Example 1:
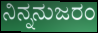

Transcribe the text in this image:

ನಿನ್ನನುಜರಂ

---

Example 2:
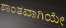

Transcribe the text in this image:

ಶಾಂತವಾಗಿಯೇ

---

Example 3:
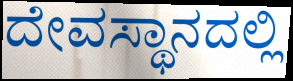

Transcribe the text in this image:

ದೇವಸ್ಥಾನದಲ್ಲಿ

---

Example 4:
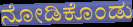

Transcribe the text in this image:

ನೋಡಿಕೊಂಡು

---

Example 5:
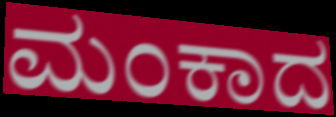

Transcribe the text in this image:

ಮಂಕಾದ